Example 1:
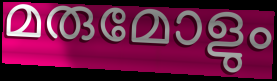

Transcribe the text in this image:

മരുമോളും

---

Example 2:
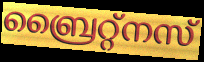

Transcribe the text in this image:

ബ്രൈറ്റ്നസ്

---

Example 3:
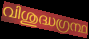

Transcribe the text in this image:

വിശുദ്ധഗ്രന്ഥ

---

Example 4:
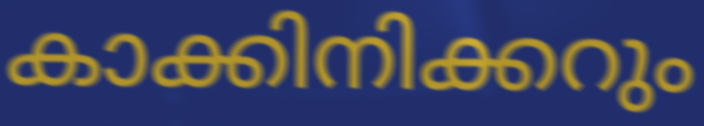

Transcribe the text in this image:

കാക്കിനിക്കറും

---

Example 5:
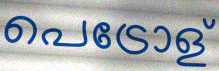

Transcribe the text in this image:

പെട്രോള്